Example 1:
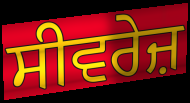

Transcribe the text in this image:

ਸੀਵਰੇਜ਼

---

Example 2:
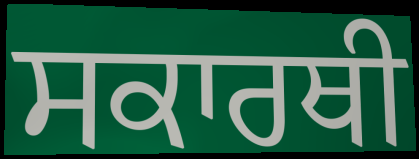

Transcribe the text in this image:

ਸਕਾਰਥੀ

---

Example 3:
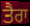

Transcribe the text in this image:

ਤੈਰਾ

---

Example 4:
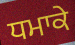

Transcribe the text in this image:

ਧਮਾਕੇ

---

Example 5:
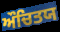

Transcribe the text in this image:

ਔਚਿਤਯ